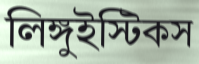
লিঙ্গুইস্টিকস